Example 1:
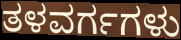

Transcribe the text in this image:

ತಳವರ್ಗಗಳು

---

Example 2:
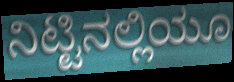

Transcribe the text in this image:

ನಿಟ್ಟಿನಲ್ಲಿಯೂ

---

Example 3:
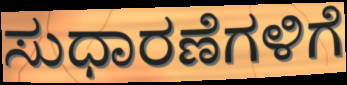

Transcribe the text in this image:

ಸುಧಾರಣೆಗಳಿಗೆ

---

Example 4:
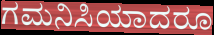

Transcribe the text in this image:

ಗಮನಿಸಿಯಾದರೂ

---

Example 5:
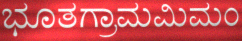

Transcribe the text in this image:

ಭೂತಗ್ರಾಮಮಿಮಂ